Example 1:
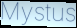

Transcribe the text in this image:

Mystus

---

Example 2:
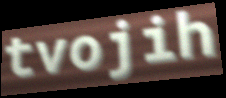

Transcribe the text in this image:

tvojih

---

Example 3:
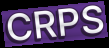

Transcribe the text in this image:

CRPS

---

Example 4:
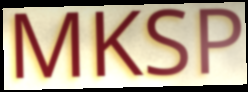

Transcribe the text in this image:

MKSP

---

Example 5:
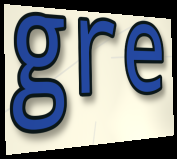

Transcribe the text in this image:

gre